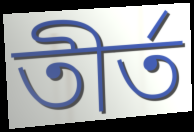
তীর্ত